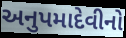
અનુપમાદેવીનો